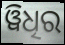
ୱିଧିର